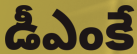
డీఎంకే